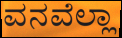
ವನವೆಲ್ಲಾ